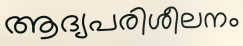
ആദ്യപരിശീലനം